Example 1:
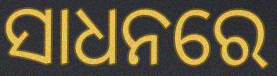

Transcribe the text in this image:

ସାଧନରେ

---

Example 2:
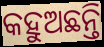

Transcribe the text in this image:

କହୁଅଛନ୍ତି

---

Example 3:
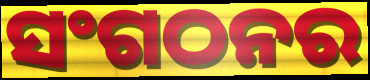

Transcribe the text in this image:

ସଂଗଠନର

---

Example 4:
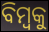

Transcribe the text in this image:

ବିମ୍ବକୁ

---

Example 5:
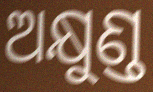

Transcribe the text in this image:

ଅକ୍ଷୁଣ୍ଡ